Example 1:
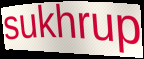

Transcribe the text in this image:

sukhrup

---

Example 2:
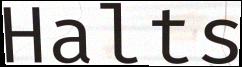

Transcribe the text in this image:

Halts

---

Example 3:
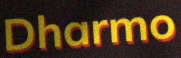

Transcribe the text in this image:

Dharmo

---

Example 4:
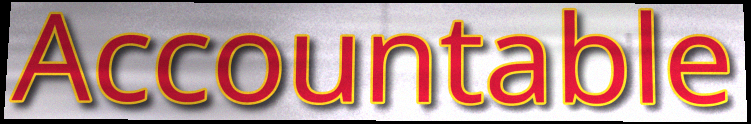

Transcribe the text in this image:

Accountable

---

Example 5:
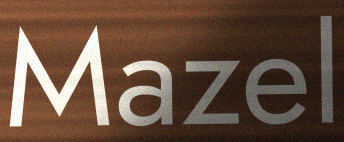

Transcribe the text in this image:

Mazel